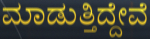
ಮಾಡುತ್ತಿದ್ದೇವೆ